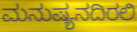
ಮನುಷ್ಯನದಿರಲಿ